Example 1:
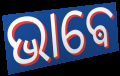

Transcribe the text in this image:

ଭାଵେ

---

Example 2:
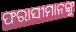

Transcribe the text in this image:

ଫରାସୀମାନଙ୍କୁ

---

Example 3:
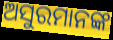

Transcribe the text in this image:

ଅସୁରମାନଙ୍କ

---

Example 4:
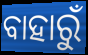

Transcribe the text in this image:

ବାହାରୁଁ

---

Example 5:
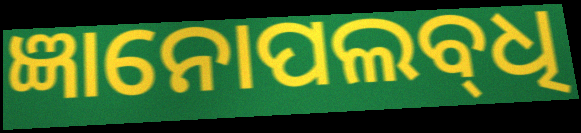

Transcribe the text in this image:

ଜ୍ଞାନୋପଲବ୍‌ଧି